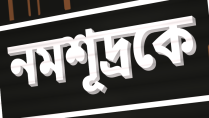
নমশূদ্রকে